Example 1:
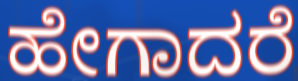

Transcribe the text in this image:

ಹೇಗಾದರೆ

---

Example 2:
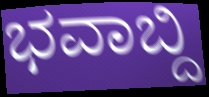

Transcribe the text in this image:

ಭವಾಬ್ದಿ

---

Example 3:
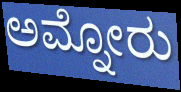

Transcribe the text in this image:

ಅಮ್ನೋರು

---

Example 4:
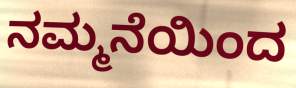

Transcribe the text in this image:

ನಮ್ಮನೆಯಿಂದ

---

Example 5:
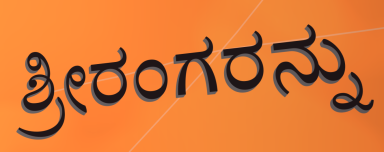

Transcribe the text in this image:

ಶ್ರೀರಂಗರನ್ನು